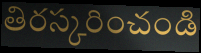
తిరస్కరించండి